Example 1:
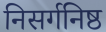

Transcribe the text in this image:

निसर्गनिष्ठ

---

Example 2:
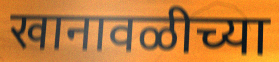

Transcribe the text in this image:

खानावळीच्या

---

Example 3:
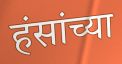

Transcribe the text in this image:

हंसांच्या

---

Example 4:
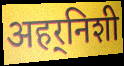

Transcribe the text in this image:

अहर्निशी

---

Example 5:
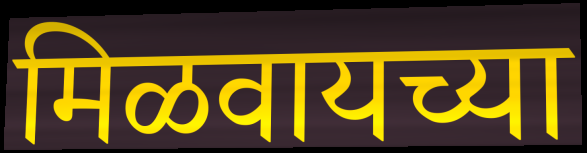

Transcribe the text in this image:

मिळवायच्या